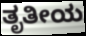
ತೃತೀಯ